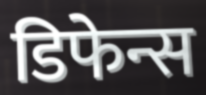
डिफेन्स